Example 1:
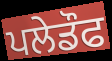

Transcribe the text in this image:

ਪਲੇਡੌਫ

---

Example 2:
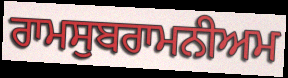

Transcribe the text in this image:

ਰਾਮਸੁਬਰਾਮਨੀਅਮ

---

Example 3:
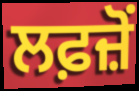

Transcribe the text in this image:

ਲਫ਼ਜ਼ੋਂ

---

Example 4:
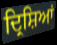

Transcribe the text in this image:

ਦ੍ਰਿਸ਼ਿਆਂ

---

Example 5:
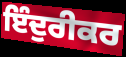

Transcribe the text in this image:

ਇੰਦੁਰੀਕਰ